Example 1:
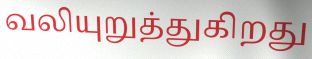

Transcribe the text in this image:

வலியுறுத்துகிறது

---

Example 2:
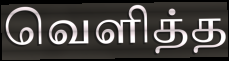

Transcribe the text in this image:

வெளித்த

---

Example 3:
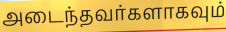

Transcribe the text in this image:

அடைந்தவர்களாகவும்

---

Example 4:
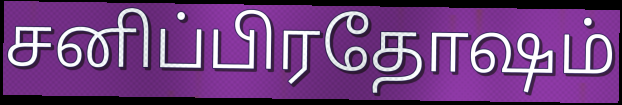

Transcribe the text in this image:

சனிப்பிரதோஷம்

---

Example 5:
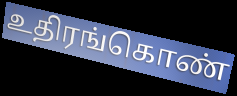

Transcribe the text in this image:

உதிரங்கொண்